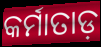
କର୍ମାତାଡ଼